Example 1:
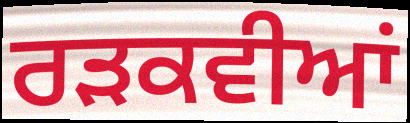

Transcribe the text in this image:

ਰੜਕਵੀਆਂ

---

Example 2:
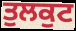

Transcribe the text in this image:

ਤੁਲਕੁਟ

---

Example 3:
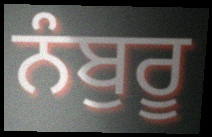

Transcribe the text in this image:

ਨੰਬੁਰੂ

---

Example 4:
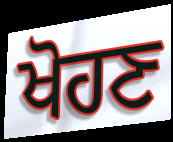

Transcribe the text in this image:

ਖੋਹਣ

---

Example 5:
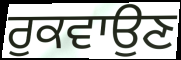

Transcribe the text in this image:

ਰੁਕਵਾਉਣ